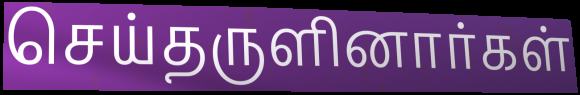
செய்தருளினார்கள்